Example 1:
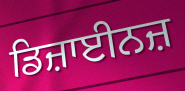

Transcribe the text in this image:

ਡਿਜ਼ਾਈਨਜ਼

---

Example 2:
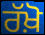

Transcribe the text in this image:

ਰੱਖ਼ੋ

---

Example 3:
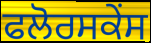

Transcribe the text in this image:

ਫਲੋਰਸਕੇਂਸ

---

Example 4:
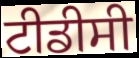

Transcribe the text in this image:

ਟੀਡੀਸੀ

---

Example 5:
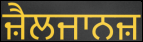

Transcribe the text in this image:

ਜ਼ੈਲਜਾਨਜ਼